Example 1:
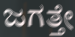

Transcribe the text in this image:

ಜಗತ್ತೇ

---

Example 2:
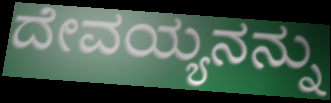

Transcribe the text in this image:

ದೇವಯ್ಯನನ್ನು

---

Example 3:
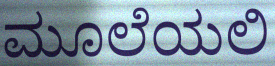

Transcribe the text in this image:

ಮೂಲೆಯಲಿ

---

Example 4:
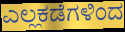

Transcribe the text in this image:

ಎಲ್ಲಕಡೆಗಳಿಂದ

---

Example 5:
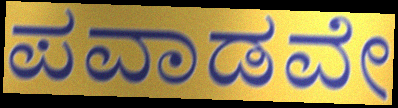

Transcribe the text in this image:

ಪವಾಡವೇ